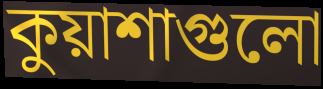
কুয়াশাগুলো